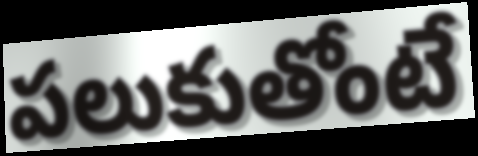
పలుకుతోంటే